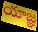
యాజ్ఞ